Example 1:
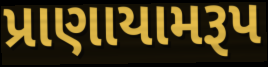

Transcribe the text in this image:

પ્રાણાયામરૂપ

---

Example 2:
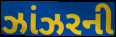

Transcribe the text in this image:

ઝાંઝરની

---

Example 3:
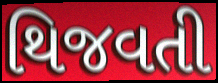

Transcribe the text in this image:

થિજવતી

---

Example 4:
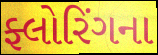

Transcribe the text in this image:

ફ્લોરિંગના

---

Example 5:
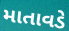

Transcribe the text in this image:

માતાવડે